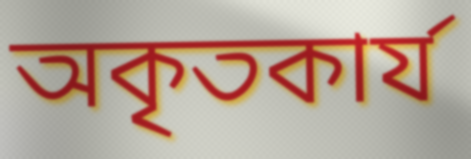
অকৃতকাৰ্য